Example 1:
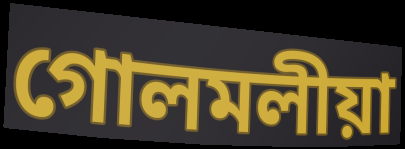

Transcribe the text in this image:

গোলমলীয়া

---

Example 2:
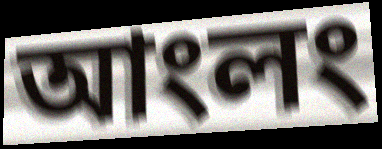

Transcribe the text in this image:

আংলং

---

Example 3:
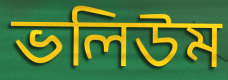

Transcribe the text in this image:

ভলিউম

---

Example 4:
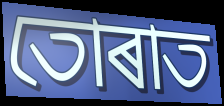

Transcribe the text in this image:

তোৰাত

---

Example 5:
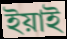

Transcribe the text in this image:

ইয়াই